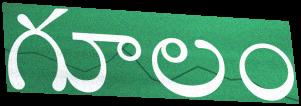
గూలం